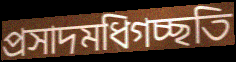
প্রসাদমধিগচ্ছতি